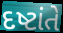
દષ્ટાંતે